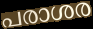
പരാശര